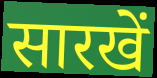
सारखें